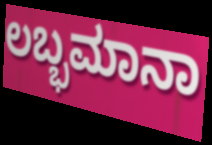
ಲಬ್ಭಮಾನಾ